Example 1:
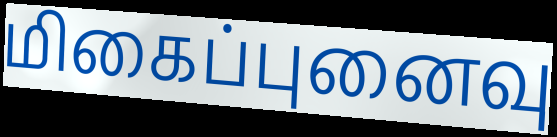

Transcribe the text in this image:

மிகைப்புனைவு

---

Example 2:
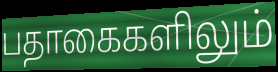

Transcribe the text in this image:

பதாகைகளிலும்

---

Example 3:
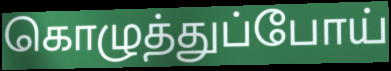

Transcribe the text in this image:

கொழுத்துப்போய்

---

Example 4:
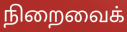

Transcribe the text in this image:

நிறைவைக்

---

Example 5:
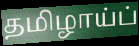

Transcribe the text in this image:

தமிழாய்ப்